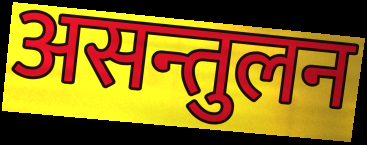
असन्तुलन